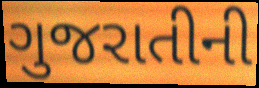
ગુજરાતીની